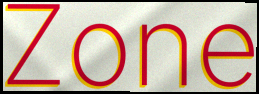
Zone